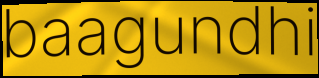
baagundhi